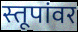
स्तूपांवर